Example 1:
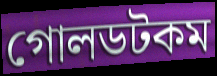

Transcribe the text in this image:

গোলডটকম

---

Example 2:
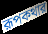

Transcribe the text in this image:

রূপকথার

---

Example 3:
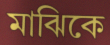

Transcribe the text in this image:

মাঝিকে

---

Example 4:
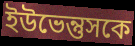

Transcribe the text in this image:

ইউভেন্তুসকে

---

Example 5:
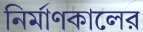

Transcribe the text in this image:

নির্মাণকালের